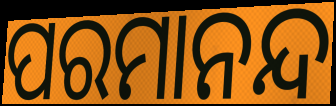
ପରମାନନ୍ଦ